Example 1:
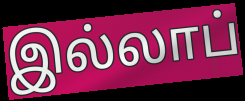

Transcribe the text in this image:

இல்லாப்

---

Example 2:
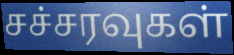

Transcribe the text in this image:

சச்சரவுகள்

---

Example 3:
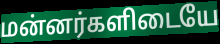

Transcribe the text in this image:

மன்னர்களிடையே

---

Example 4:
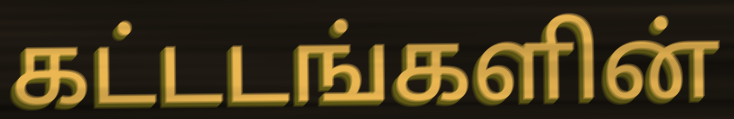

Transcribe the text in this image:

கட்டடங்களின்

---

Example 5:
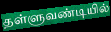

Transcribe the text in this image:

தள்ளுவண்டியில்